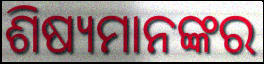
ଶିଷ୍ୟମାନଙ୍କର